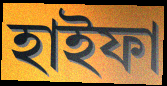
হাইফা